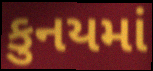
કુનયમાં